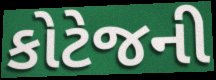
કોટેજની